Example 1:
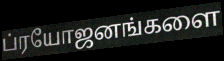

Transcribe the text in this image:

ப்ரயோஜனங்களை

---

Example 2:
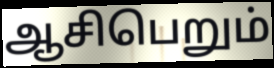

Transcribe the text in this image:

ஆசிபெறும்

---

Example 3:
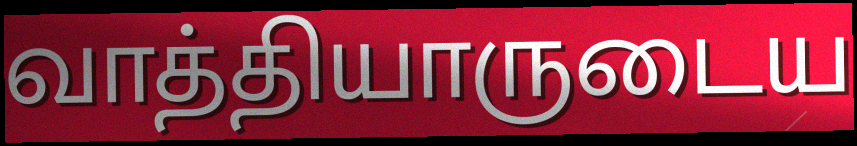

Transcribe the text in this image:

வாத்தியாருடைய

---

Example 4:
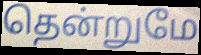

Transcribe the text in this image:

தென்றுமே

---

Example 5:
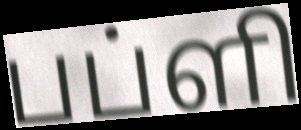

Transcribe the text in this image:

பப்ளி